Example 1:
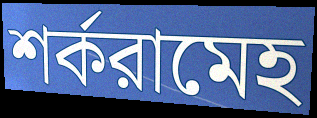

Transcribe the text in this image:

শর্করামেহ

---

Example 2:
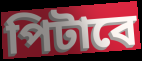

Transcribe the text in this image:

পিটাবে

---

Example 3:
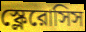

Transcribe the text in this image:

স্ক্লেরোসিস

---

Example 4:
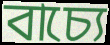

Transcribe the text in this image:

বাচ্যে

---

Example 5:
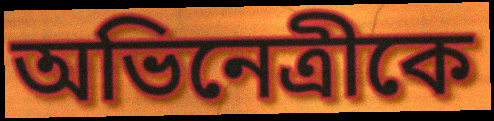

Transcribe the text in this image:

অভিনেত্রীকে